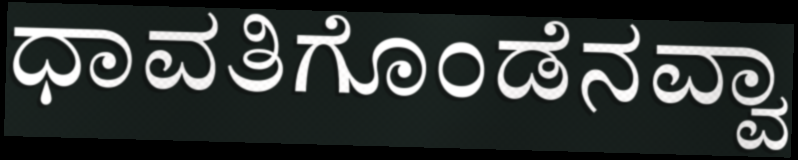
ಧಾವತಿಗೊಂಡೆನವ್ವಾ